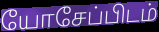
யோசேப்பிடம்